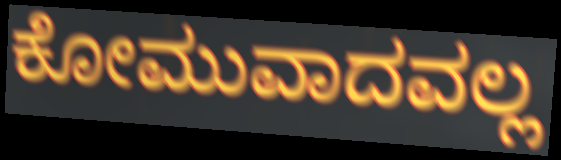
ಕೋಮುವಾದವಲ್ಲ